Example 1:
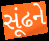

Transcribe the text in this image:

સૂંઢને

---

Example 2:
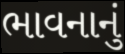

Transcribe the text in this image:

ભાવનાનું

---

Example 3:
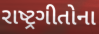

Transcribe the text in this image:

રાષ્ટ્રગીતોના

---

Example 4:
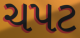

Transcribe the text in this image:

ચપટ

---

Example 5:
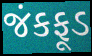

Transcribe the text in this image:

જંકફૂડ